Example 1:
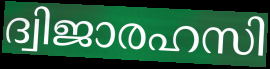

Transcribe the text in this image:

ദ്വിജാരഹസി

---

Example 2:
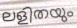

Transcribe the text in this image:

ലളിതയും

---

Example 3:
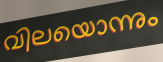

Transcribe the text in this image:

വിലയൊന്നും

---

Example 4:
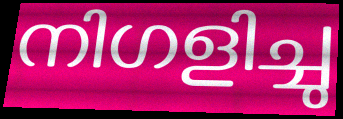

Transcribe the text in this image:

നിഗളിച്ചു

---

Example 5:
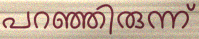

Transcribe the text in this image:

പറഞ്ഞിരുന്ന്